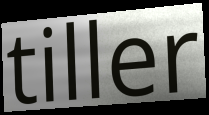
tiller